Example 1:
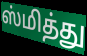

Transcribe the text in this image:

ஸ்மித்து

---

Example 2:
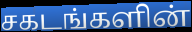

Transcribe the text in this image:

சகடங்களின்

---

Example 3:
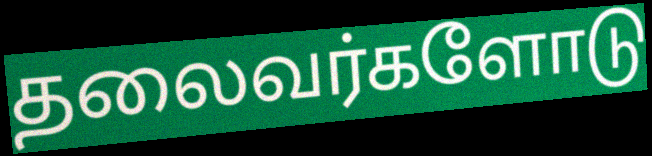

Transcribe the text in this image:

தலைவர்களோடு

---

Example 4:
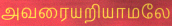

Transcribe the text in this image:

அவரையறியாமலே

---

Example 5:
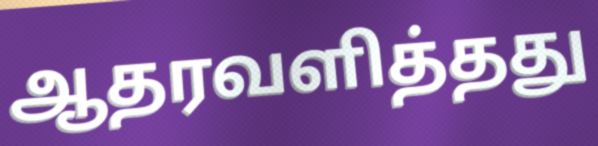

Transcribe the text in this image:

ஆதரவளித்தது